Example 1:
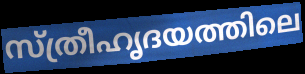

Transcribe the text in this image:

സ്ത്രീഹൃദയത്തിലെ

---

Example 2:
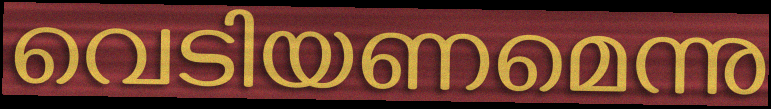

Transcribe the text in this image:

വെടിയണമെന്നു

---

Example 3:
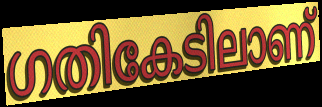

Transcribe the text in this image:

ഗതികേടിലാണ്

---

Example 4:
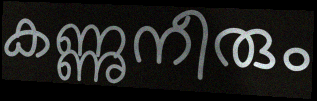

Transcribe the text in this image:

കണ്ണുനീരും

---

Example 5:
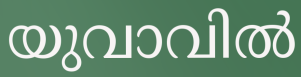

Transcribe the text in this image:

യുവാവിൽ